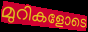
മുറികളോടെ